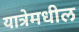
यात्रेमधील